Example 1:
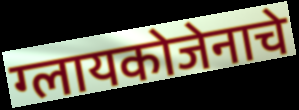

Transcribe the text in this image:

ग्लायकोजेनाचे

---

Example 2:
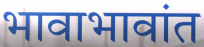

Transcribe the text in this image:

भावाभावांत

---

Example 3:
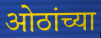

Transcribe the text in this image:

ओठांच्या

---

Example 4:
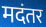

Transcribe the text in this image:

मदंतर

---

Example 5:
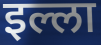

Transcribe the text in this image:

इल्ला